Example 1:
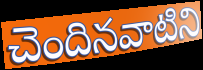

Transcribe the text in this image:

చెందినవాటిని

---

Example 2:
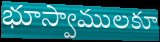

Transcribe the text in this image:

భూస్వాములకూ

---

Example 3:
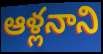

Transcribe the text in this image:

ఆళ్లనాని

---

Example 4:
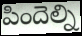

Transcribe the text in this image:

పిందెల్ని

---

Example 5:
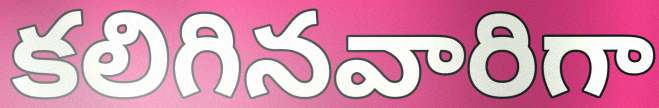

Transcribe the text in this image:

కలిగినవారిగా